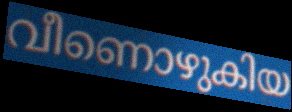
വീണൊഴുകിയ